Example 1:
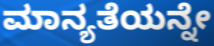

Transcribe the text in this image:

ಮಾನ್ಯತೆಯನ್ನೇ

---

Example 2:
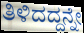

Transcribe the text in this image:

ತಿಳಿದದ್ದನ್ನೇ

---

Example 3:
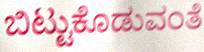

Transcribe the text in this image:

ಬಿಟ್ಟುಕೊಡುವಂತೆ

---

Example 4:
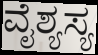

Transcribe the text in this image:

ವೈಶ್ಯಸ್ಯ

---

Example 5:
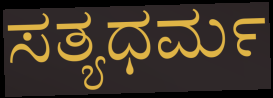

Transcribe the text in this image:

ಸತ್ಯಧರ್ಮ